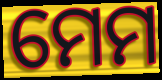
ମେମ